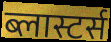
ब्लास्टर्स